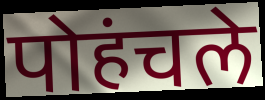
पोहंचले